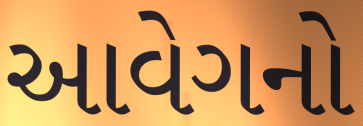
આવેગનો